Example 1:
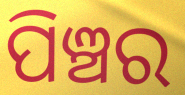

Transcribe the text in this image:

ପିଞ୍ଚର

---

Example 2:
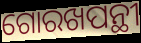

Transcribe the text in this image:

ଗୋରଖପନ୍ଥୀ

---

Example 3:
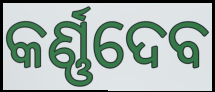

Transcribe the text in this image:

କର୍ଣ୍ଣଦେବ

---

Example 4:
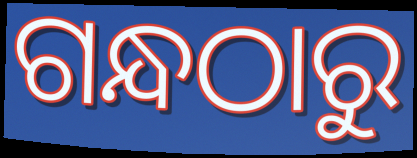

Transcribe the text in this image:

ଗନ୍ଧଠାରୁ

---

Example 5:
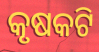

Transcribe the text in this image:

କୃଷକଟି